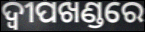
ଦ୍ଵୀପଖଣ୍ଡରେ